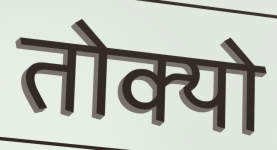
तोक्यो